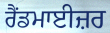
ਰੈਂਡਮਾਈਜ਼ਰ